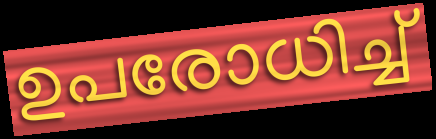
ഉപരോധിച്ച്